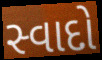
સ્વાદો